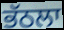
ਭੱਠਲਾ